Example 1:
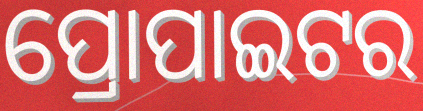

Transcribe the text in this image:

ପ୍ରୋପାଇଟର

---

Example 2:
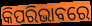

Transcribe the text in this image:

କିପରିଭାବରେ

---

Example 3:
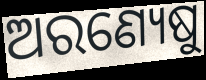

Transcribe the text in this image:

ଅରଣ୍ୟେଷୁ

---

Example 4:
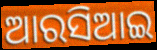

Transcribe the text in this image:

ଆରସିଆଇ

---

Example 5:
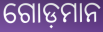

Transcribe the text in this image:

ଗୋଡ଼ମାନ